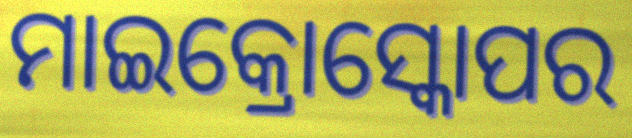
ମାଇକ୍ରୋସ୍କୋପର